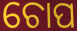
ଚୋପ